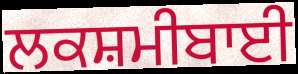
ਲਕਸ਼ਮੀਬਾਈ